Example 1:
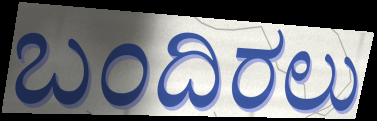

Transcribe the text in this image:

ಬಂದಿರಲು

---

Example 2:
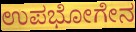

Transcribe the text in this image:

ಉಪಭೋಗೇನ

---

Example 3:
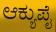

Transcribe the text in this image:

ಆಕ್ಯುಪೈ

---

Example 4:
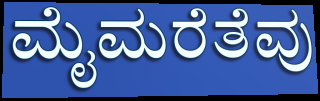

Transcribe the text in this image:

ಮೈಮರೆತೆವು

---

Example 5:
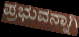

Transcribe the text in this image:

ಪ್ರಭುವನ್ನಾಗಿ